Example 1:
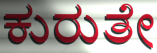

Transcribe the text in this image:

ಕುರುತೇ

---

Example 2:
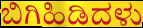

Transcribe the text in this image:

ಬಿಗಿಹಿಡಿದಳು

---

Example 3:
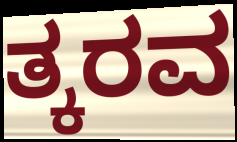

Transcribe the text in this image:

ತ್ಕರವ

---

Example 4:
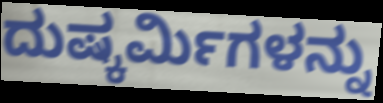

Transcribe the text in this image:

ದುಷ್ಕರ್ಮಿಗಳನ್ನು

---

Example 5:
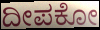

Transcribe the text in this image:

ದೀಪಕೋ